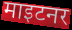
माइटनर